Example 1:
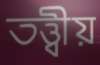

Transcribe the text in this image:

তত্ত্বীয়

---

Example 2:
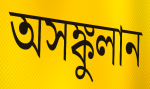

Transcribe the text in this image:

অসঙ্কুলান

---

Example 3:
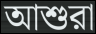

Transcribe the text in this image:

আশুরা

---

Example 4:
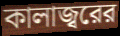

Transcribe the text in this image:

কালাজ্বরের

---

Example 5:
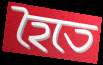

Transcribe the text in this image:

হৈতে